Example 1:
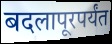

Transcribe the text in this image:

बदलापूरपर्यंत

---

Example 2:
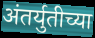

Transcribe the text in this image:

अंतर्युतीच्या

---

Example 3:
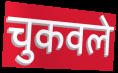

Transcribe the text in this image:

चुकवले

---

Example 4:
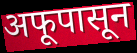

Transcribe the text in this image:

अफूपासून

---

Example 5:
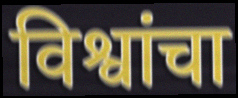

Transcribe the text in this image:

विश्वांचा